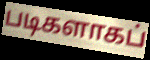
படிகளாகப்